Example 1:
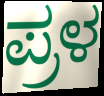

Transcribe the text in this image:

ಪ್ರಳ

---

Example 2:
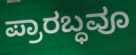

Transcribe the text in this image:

ಪ್ರಾರಬ್ಧವೂ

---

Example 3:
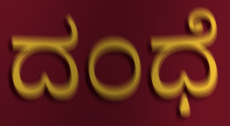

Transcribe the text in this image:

ದಂಧೆ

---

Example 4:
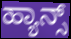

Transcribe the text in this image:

ಹ್ಯಾನ್ಸ್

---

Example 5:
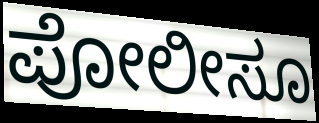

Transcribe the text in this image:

ಪೋಲೀಸೂ